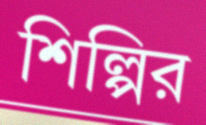
শিল্পির